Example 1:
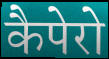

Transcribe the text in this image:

कैपेरो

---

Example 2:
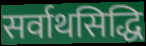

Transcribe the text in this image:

सर्वाथसिद्धि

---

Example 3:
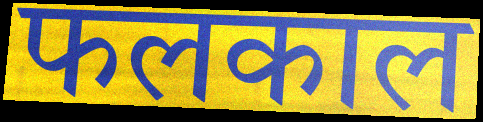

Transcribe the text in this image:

फलकाल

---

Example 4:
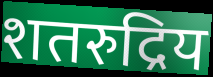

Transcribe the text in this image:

शतरुद्रिय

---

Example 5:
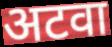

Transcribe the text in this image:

अटवा